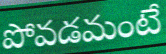
పోవడమంటే